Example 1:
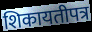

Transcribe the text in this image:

शिकायतीपत्र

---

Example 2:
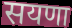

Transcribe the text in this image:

सयणा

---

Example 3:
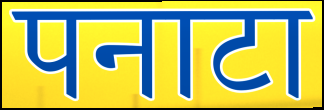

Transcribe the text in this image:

पनाटा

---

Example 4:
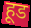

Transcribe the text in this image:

हूड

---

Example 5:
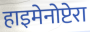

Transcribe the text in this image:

हाइमेनोप्टेरा